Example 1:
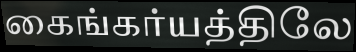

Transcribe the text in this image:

கைங்கர்யத்திலே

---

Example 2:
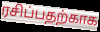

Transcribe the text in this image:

ரசிப்பதற்காக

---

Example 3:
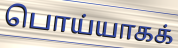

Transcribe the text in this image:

பொய்யாகக்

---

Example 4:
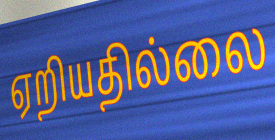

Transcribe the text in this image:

ஏறியதில்லை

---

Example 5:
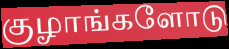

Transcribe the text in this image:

குழாங்களோடு